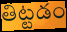
తిట్టడం